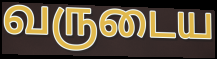
வருடைய